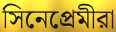
সিনেপ্রেমীরা